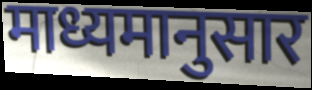
माध्यमानुसार